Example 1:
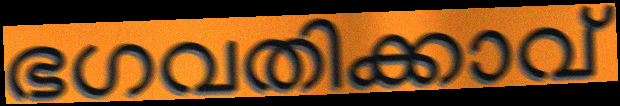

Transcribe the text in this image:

ഭഗവതിക്കാവ്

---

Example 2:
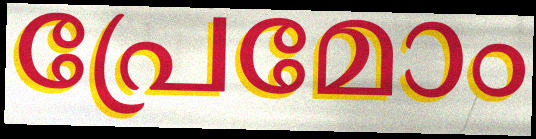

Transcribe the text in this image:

പ്രേമോം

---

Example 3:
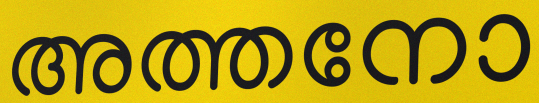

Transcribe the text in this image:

അത്തനോ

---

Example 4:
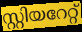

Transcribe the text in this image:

സ്റ്റിയറേറ്റ്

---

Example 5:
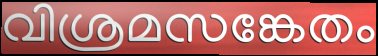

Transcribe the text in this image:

വിശ്രമസങ്കേതം